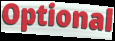
Optional